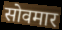
सोवमार